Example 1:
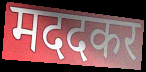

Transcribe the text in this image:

मददकर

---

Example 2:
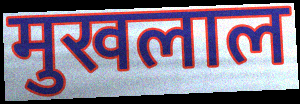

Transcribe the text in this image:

मुखलाल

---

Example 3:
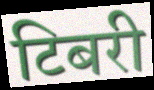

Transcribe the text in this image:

टिबरी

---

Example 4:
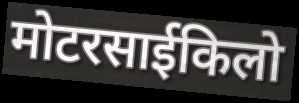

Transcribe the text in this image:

मोटरसाईकिलो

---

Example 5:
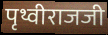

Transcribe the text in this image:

पृथ्वीराजजी